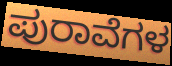
ಪುರಾವೆಗಳ